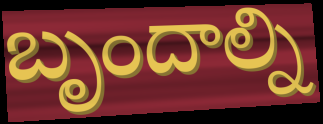
బృందాల్ని